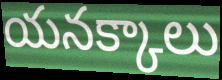
యనక్కాలు